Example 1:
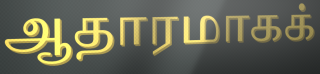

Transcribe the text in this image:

ஆதாரமாகக்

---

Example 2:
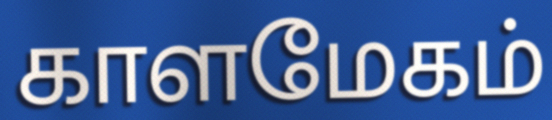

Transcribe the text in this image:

காளமேகம்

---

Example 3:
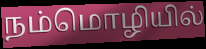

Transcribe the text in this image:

நம்மொழியில்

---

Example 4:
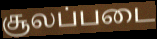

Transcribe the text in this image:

சூலப்படை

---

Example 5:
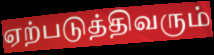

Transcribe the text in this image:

ஏற்படுத்திவரும்